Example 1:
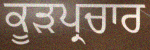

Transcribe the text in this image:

ਕੂੜਪ੍ਰਚਾਰ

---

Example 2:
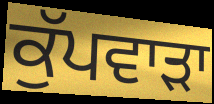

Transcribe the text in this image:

ਕੁੱਪਵਾੜਾ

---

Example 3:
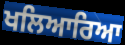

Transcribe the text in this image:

ਖਲਿਆਰਿਆ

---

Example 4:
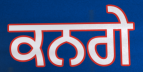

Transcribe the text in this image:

ਕਨਗੇ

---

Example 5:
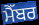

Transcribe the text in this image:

ਮੈੱਬਰ